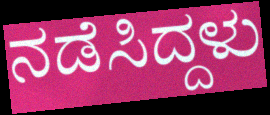
ನಡೆಸಿದ್ದಳು